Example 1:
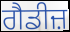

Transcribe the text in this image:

ਗੈਡੀਜ਼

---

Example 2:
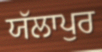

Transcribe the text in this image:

ਯੱਲਾਪੁਰ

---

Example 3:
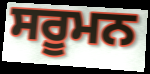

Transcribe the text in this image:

ਸਰੂਮਨ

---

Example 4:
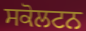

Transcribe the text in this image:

ਸਕੋਲਟਨ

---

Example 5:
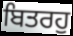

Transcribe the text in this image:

ਬਿਤਰਹੁ